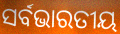
ସର୍ବଭାରତୀୟ